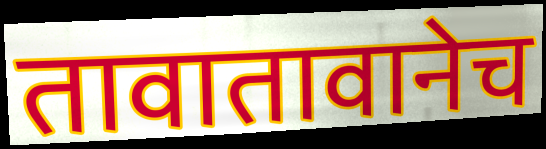
तावातावानेच